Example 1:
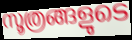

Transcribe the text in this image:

സൂത്രങ്ങളുടെ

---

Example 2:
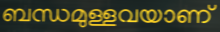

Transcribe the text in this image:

ബന്ധമുള്ളവയാണ്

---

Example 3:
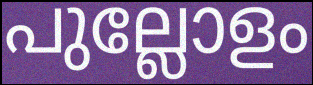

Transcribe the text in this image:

പുല്ലോളം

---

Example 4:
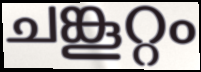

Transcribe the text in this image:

ചങ്കൂറ്റം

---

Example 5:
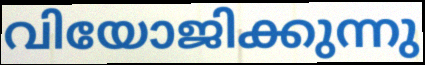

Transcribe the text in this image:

വിയോജിക്കുന്നു